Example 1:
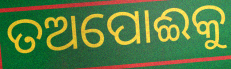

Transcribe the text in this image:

ତଅପୋଈକୁ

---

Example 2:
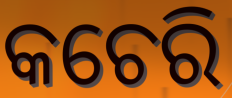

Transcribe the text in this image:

କଚେରି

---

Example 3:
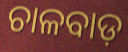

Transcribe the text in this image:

ଚାଳବାଡ଼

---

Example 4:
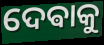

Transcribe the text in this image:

ଦେଵାକୁ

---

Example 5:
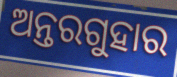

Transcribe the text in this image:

ଅନ୍ତରଗୁହାର